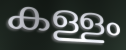
കള്ളം